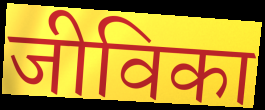
जीविका